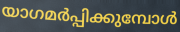
യാഗമർപ്പിക്കുമ്പോൾ